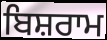
ਬਿਸ਼ਰਾਮ